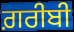
ਗ਼ਰੀਬੀ